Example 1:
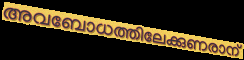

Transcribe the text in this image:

അവബോധത്തിലേക്കുണരാന്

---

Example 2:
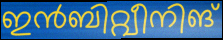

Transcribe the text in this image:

ഇൻബിറ്റ്വീനിങ്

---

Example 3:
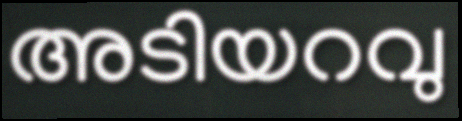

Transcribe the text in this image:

അടിയറവു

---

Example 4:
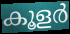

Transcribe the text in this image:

കൂളർ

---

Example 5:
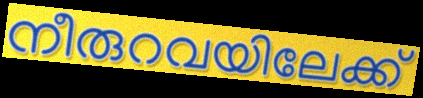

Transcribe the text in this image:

നീരുറവയിലേക്ക്